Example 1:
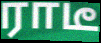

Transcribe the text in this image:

ராடீ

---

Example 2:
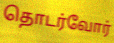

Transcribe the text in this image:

தொடர்வோர்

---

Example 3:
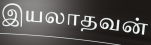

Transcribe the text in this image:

இயலாதவன்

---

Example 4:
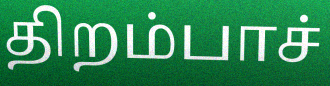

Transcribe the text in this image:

திறம்பாச்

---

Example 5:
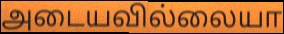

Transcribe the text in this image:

அடையவில்லையா